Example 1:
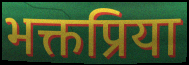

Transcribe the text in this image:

भक्तप्रिया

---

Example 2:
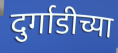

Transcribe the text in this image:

दुर्गाडीच्या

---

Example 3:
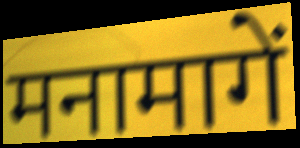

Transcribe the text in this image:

मनामागें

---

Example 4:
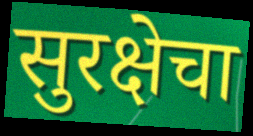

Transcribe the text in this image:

सुरक्षेचा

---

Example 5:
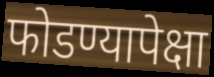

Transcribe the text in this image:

फोडण्यापेक्षा